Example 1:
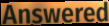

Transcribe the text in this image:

Answered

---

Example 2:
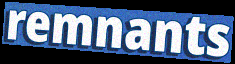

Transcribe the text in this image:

remnants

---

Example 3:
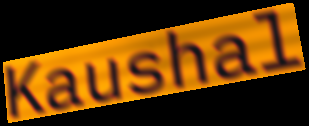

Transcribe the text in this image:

Kaushal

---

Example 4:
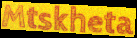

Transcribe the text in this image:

Mtskheta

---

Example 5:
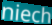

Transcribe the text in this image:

niech